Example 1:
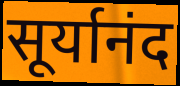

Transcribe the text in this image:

सूर्यानंद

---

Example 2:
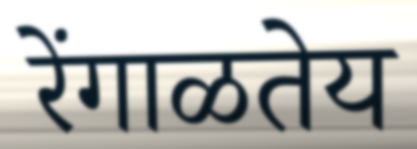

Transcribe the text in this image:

रेंगाळतेय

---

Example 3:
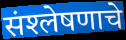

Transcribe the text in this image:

संश्लेषणाचे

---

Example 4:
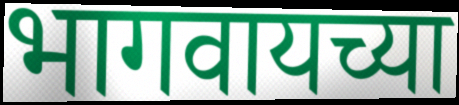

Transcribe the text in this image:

भागवायच्या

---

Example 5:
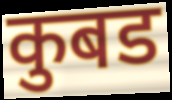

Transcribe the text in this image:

कुबड